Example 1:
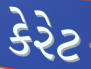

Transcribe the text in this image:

કેરેટ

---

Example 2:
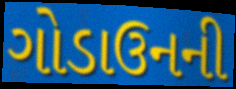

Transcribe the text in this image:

ગોડાઉનની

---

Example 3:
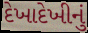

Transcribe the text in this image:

દેખાદેખીનું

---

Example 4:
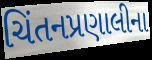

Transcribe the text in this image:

ચિંતનપ્રણાલીના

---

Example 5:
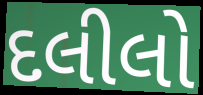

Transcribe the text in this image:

દલીલો